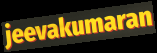
jeevakumaran